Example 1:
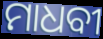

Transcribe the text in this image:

ମାଧବୀ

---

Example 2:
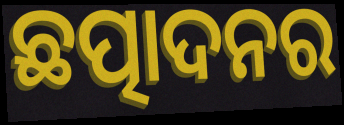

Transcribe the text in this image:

ଛତ୍ପାଦନର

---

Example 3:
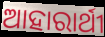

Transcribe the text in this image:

ଆହାରାର୍ଥୀ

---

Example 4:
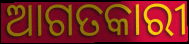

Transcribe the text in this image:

ଆଗତକାରୀ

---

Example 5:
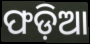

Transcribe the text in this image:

ଫଡ଼ିଆ